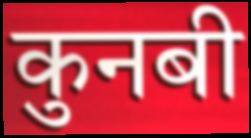
कुनबी